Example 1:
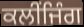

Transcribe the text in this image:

ਕਲੀਂਜਿੰਗ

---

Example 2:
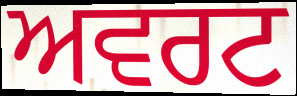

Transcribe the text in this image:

ਅਵਰਟ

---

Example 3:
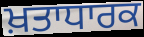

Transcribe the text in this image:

ਖ਼ਤਾਧਾਰਕ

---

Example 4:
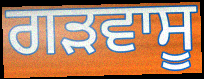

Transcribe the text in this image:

ਗੜਵਾਸੂ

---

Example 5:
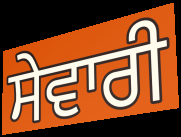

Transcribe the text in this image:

ਸੇਵਾਰੀ